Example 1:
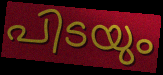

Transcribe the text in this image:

പിടയും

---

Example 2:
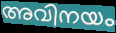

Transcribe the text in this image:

അവിനയം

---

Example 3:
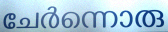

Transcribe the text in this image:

ചേർന്നൊരു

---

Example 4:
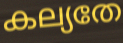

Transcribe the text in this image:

കല്യതേ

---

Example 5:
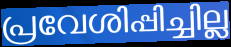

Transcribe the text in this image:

പ്രവേശിപ്പിച്ചില്ല